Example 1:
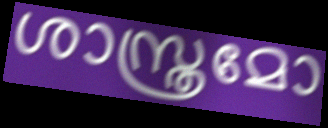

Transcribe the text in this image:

ശാസ്ത്രമോ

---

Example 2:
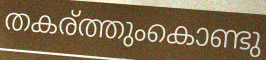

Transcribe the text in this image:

തകര്ത്തുംകൊണ്ടു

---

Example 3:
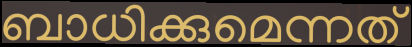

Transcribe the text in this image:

ബാധിക്കുമെന്നത്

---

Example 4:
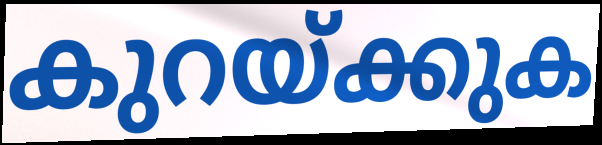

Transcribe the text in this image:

കുറയ്ക്കുക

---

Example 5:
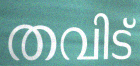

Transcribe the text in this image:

തവിട്